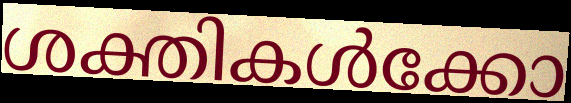
ശക്തികൾക്കോ